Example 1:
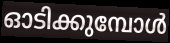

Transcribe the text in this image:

ഓടിക്കുമ്പോൾ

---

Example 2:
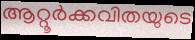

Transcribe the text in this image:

ആറ്റൂർക്കവിതയുടെ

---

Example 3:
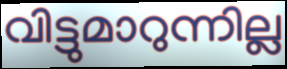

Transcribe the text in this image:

വിട്ടുമാറുന്നില്ല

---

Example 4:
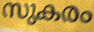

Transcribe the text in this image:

സുകരം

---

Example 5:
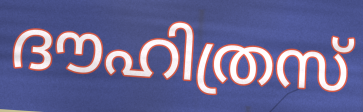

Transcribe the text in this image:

ദൗഹിത്രസ്